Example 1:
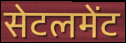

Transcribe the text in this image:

सेटलमेंट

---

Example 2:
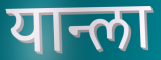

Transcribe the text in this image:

यान्ला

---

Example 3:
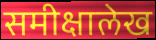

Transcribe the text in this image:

समीक्षालेख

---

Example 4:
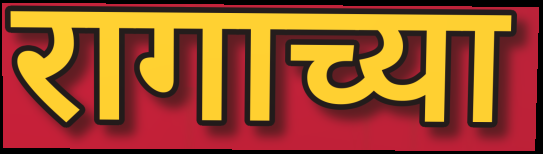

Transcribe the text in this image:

रागाच्या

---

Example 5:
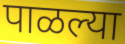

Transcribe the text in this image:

पाळल्या